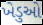
ખેડુઓ